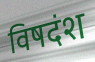
विषदंश